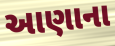
આણાના